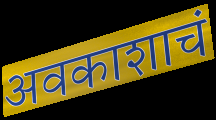
अवकाशाचं